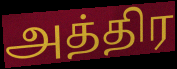
அத்திர